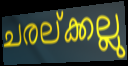
ചരല്ക്കല്ലു